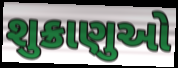
શુક્રાણુઓ